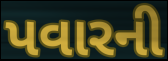
પવારની